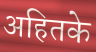
अहितके